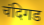
चंदिगड